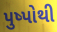
પુષ્પોથી